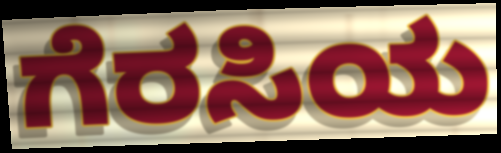
ಗೆರಸಿಯ